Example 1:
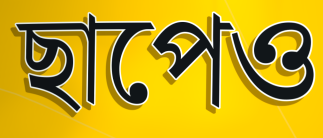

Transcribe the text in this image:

ছাপেও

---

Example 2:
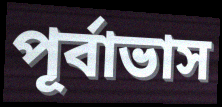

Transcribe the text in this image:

পূর্বাভাস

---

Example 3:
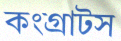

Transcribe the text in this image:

কংগ্রাটস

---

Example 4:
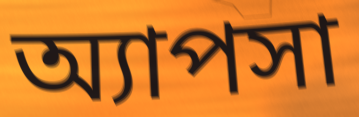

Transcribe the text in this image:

অ্যাপসা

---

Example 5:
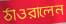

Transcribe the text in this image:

ঠাওরালেন